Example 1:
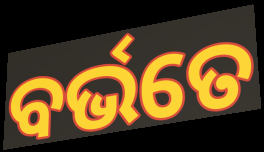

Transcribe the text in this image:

ବର୍ଭତେ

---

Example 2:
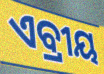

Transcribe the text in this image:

ଏବ୍ରୀୟ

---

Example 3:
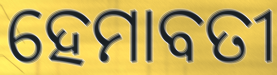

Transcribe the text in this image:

ହେମାବତୀ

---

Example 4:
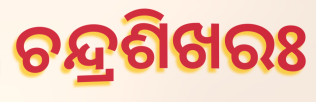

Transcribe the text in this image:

ଚନ୍ଦ୍ରଶିଖରଃ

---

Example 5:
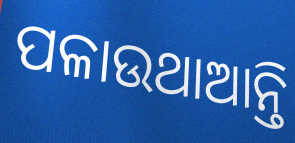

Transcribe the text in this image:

ପଳାଉଥାଆନ୍ତି